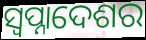
ସ୍ଵପ୍ନାଦେଶର